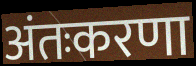
अंतःकरणा